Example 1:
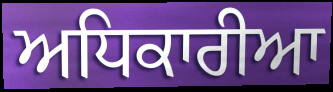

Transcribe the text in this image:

ਅਧਿਕਾਰੀਆ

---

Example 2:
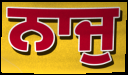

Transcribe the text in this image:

ਨਾਜੁ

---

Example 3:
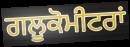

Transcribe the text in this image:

ਗਲੂਕੋਮੀਟਰਾਂ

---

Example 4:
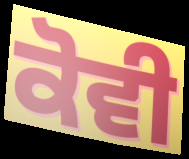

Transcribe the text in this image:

ਕੋਵੀ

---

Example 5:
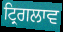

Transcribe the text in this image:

ਟ੍ਰਿਗਲਾਵ